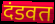
दंडवत